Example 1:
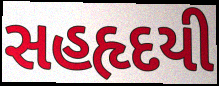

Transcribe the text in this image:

સહહૃદયી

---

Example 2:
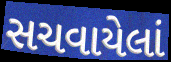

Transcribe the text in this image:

સચવાયેલાં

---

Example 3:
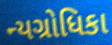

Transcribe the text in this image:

ન્યગ્રોધિકા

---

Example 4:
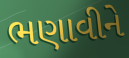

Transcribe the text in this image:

ભણાવીને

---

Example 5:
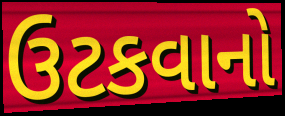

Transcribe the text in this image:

ઉટકવાનો